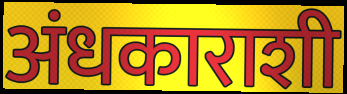
अंधकाराशी